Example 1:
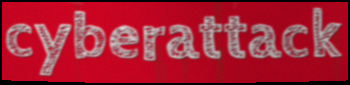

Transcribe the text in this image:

cyberattack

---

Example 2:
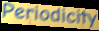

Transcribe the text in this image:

Periodicity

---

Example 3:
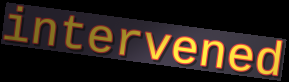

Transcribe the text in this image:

intervened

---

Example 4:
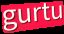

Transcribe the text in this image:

gurtu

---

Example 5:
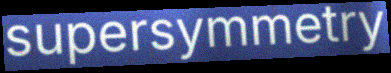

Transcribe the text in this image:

supersymmetry